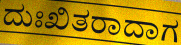
ದುಃಖಿತರಾದಾಗ